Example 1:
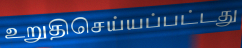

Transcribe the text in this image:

உறுதிசெய்யப்பட்டது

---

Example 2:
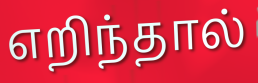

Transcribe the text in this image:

எறிந்தால்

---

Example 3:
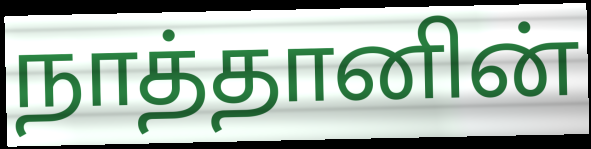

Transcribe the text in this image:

நாத்தானின்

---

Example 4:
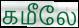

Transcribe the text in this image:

கமீலே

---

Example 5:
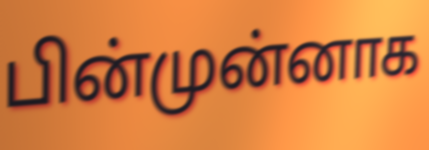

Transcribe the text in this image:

பின்முன்னாக